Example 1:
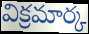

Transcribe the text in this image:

విక్రమార్క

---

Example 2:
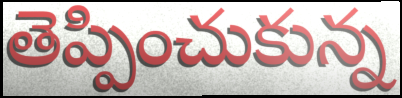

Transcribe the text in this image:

తెప్పించుకున్న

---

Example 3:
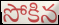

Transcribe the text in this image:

సోకిన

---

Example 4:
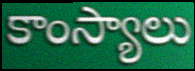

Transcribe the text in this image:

కాంస్యాలు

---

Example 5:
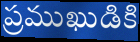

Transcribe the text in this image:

ప్రముఖుడికి